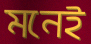
মনেই